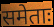
समेताः